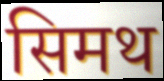
सिमथ